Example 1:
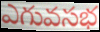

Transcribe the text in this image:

ఎగువసభ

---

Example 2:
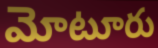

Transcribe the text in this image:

మోటూరు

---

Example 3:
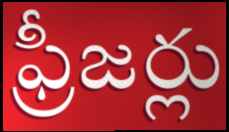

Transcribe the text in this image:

ఫ్రీజర్లు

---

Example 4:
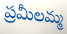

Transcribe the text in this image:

ప్రమీలమ్మ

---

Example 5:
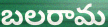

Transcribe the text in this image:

బలరామ